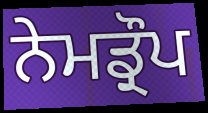
ਨੇਮਡ੍ਰੌਪ